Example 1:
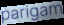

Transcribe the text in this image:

parigam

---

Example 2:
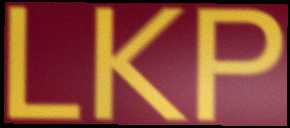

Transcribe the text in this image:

LKP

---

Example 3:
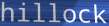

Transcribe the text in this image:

hillock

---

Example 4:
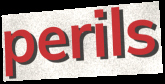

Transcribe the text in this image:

perils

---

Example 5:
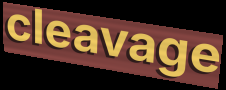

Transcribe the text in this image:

cleavage